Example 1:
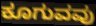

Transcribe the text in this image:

ಕೂಗುವವು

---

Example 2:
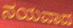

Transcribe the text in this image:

ನಯವಾದ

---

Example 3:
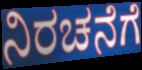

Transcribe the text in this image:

ನಿರಚನೆಗೆ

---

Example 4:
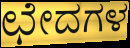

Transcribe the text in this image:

ಛೇದಗಳ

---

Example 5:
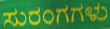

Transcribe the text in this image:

ಸುರಂಗಗಳು